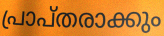
പ്രാപ്തരാക്കും